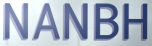
NANBH